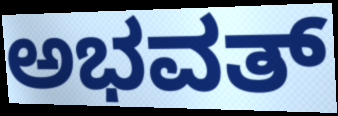
ಅಭವತ್